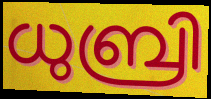
ധുബ്രി